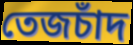
তেজচাঁদ